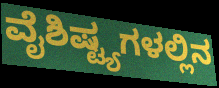
ವೈಶಿಷ್ಟ್ಯಗಳಲ್ಲಿನ